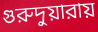
গুরুদুয়ারায়